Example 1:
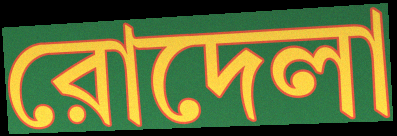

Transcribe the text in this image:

রোদেলা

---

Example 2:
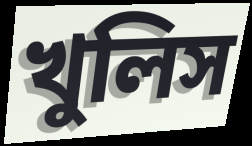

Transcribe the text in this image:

খুলিস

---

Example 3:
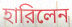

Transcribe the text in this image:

হারিলেন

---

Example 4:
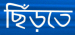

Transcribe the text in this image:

ছিঁড়তে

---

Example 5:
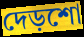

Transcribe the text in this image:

দেড়শো